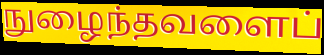
நுழைந்தவளைப்